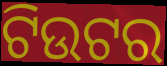
ଟିଉଟର